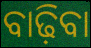
ବାଢ଼ିବା